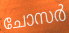
ചോസർ